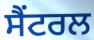
ਸੈਂਟਰਲ